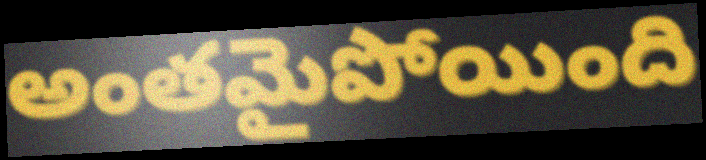
అంతమైపోయింది